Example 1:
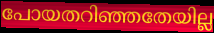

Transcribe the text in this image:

പോയതറിഞ്ഞതേയില്ല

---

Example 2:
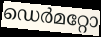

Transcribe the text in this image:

ഡെർമറ്റോ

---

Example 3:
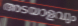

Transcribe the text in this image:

അടയാളവും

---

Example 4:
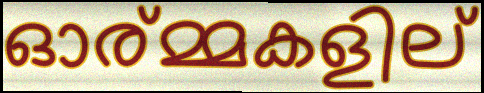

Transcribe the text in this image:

ഓര്മ്മകളില്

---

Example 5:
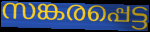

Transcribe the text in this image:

സങ്കരപ്പെട്ട